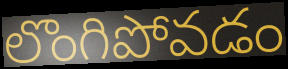
లొంగిపోవడం